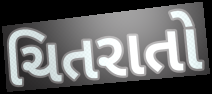
ચિતરાતો